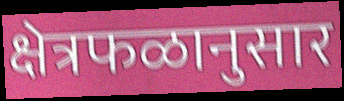
क्षेत्रफळानुसार